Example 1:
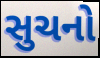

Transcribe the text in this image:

સુચનો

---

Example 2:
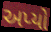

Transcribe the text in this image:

અપ્યો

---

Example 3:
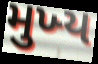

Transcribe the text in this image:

મુખ્‍ય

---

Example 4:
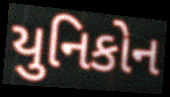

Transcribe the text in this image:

યુનિકોન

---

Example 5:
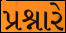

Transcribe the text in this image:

પ્રશ્નારે